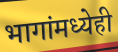
भागांमध्येही